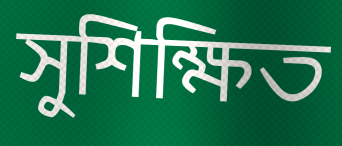
সুশিক্ষিত